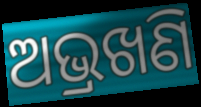
ଅଭ୍ରଖଣି